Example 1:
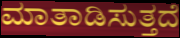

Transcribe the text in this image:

ಮಾತಾಡಿಸುತ್ತದೆ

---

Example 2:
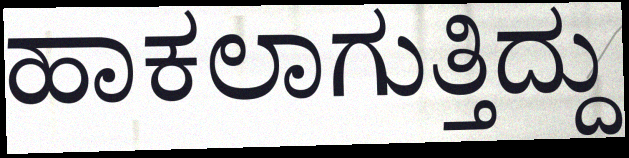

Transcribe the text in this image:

ಹಾಕಲಾಗುತ್ತಿದ್ದು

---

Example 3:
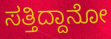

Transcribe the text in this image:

ಸತ್ತಿದ್ದಾನೋ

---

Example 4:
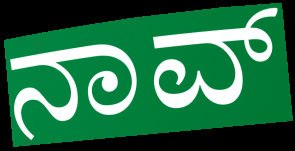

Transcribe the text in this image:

ನಾವ್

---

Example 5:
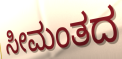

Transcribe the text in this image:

ಸೀಮಂತದ